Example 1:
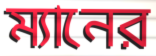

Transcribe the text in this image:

ম্যানের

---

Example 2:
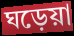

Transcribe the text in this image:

ঘড়েয়া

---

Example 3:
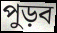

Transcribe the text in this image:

পুড়ব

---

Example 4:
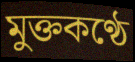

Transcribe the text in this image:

মুক্তকণ্ঠে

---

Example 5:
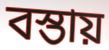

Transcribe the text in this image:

বস্তায়